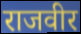
राजवीर